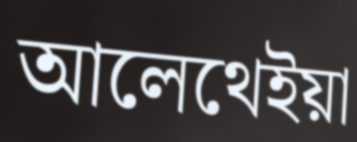
আলেথেইয়া